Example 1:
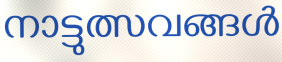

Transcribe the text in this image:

നാട്ടുത്സവങ്ങൾ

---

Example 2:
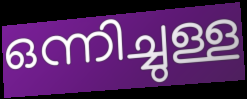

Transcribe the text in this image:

ഒന്നിച്ചുള്ള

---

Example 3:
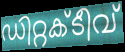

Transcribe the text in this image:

ഡിറ്റക്ടീവ്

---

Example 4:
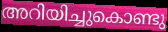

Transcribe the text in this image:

അറിയിച്ചുകൊണ്ടു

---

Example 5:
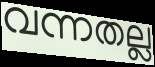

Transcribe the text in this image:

വന്നതല്ല